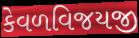
કેવળવિજયજી